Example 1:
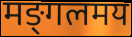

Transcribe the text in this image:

मङ्गलमय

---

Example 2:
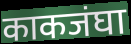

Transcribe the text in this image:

काकजंघा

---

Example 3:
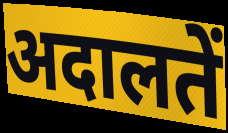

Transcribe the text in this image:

अदालतें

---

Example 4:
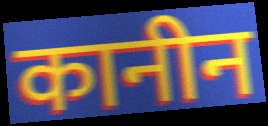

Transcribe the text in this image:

कानीन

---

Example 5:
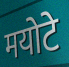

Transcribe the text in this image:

मयोटे